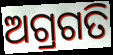
ଅଗ୍ରଗତି